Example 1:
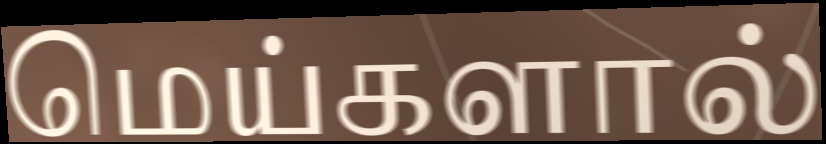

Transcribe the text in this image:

மெய்களால்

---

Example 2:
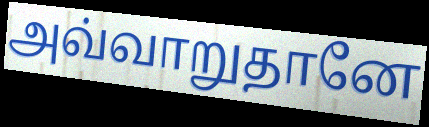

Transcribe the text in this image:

அவ்வாறுதானே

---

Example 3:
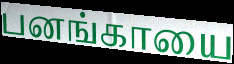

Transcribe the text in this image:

பனங்காயை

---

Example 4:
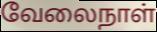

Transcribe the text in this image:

வேலைநாள்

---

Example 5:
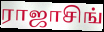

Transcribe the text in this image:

ராஜாசிங்